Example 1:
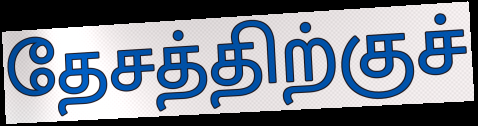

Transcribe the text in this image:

தேசத்திற்குச்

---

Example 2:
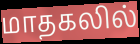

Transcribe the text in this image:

மாதகலில்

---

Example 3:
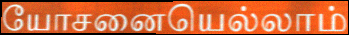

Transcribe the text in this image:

யோசனையெல்லாம்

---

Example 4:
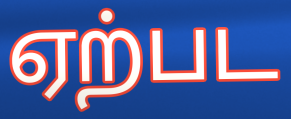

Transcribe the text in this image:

ஏற்பட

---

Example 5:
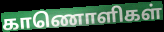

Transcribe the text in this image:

காணொளிகள்